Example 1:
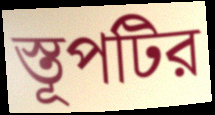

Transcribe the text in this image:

স্তূপটির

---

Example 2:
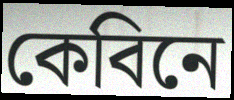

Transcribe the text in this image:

কেবিনে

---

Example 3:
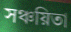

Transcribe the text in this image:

সঞ্চয়িতা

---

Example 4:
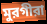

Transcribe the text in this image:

মুরগীরা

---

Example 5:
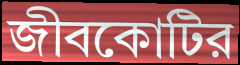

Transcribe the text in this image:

জীবকোটির